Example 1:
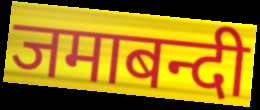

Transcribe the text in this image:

जमाबन्दी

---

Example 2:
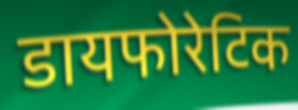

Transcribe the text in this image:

डायफोरेटिक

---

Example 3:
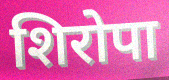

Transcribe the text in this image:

शिरोपा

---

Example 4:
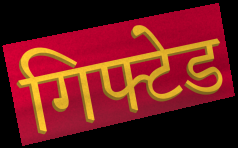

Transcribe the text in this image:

गिफ्टेड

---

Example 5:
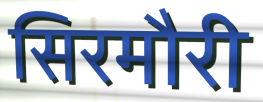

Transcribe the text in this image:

सिरमौरी